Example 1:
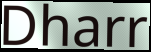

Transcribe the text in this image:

Dharr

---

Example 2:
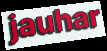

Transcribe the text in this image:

jauhar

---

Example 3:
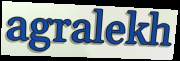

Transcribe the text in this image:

agralekh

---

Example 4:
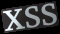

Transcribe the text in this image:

xss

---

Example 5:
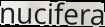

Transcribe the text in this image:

nucifera